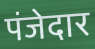
पंजेदार